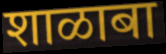
शाळाबा